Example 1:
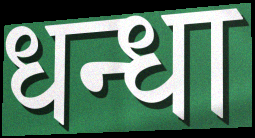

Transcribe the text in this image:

धन्धा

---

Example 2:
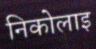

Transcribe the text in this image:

निकोलाइ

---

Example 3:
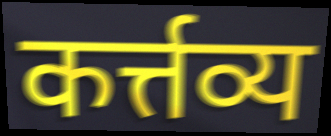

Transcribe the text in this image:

कर्त्तव्य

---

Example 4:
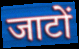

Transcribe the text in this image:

जाटों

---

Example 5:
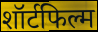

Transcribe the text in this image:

शॉर्टफिल्म